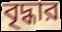
বৃদ্ধার